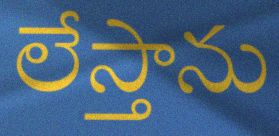
లేస్తాను